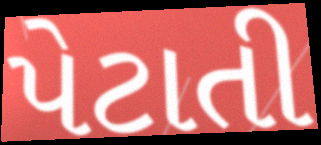
પેટાતી